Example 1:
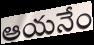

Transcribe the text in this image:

ఆయనేం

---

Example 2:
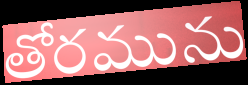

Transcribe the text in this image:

తోరమును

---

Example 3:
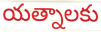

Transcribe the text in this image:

యత్నాలకు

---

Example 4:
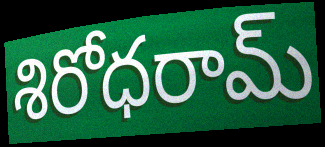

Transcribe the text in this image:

శిరోధరామ్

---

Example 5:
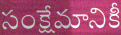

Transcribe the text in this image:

సంక్షేమానికీ